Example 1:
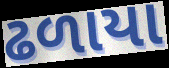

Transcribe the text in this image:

ઢળાયા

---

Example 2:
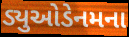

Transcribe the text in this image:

ડ્યુઓડેનમના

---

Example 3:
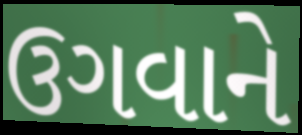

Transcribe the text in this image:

ઉગવાને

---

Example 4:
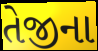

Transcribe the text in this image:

તેજીના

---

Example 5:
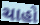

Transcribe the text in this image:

ચાહો